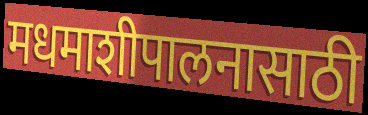
मधमाशीपालनासाठी